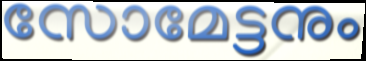
സോമേട്ടനും